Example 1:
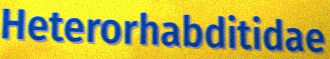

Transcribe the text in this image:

Heterorhabditidae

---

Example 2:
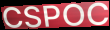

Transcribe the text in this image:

CSPOC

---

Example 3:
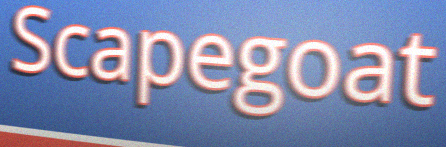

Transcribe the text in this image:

Scapegoat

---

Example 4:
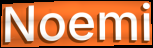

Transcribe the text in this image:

Noemi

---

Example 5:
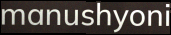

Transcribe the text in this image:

manushyoni